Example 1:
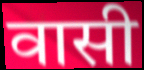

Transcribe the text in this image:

वासी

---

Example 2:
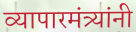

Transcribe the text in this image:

व्यापारमंत्र्यांनी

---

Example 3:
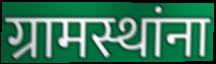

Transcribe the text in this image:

ग्रामस्थांना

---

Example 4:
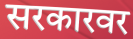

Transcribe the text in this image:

सरकारवर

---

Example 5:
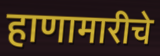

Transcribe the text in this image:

हाणामारीचे